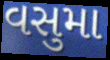
વસુમા